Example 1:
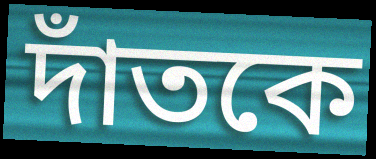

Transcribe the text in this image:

দাঁতকে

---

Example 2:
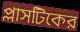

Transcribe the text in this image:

প্লাসটিকের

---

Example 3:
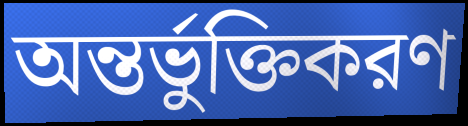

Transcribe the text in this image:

অন্তর্ভুক্তিকরণ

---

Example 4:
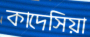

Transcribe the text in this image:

কাদেসিয়া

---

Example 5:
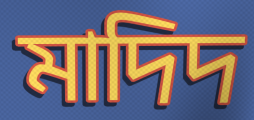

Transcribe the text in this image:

মাদিদ